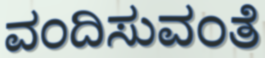
ವಂದಿಸುವಂತೆ